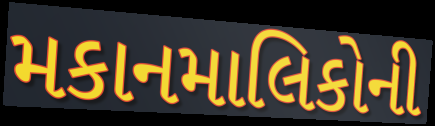
મકાનમાલિકોની